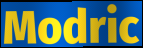
Modric